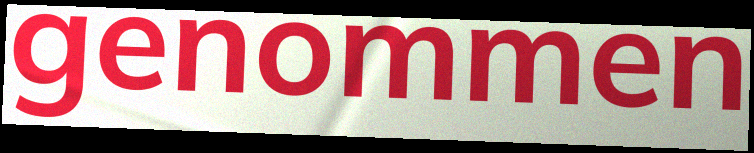
genommen